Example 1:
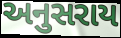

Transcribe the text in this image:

અનુસરાય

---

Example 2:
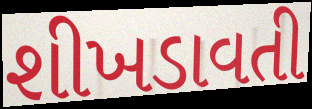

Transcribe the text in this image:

શીખડાવતી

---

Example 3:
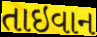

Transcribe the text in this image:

તાઇવાન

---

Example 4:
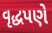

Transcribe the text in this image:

વૃદ્ધપણે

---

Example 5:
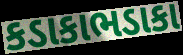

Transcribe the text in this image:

કડાકાભડાકા